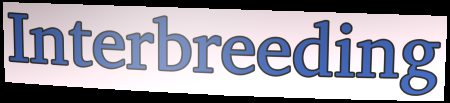
Interbreeding